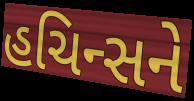
હચિન્સને